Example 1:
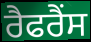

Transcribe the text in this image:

ਰੈਫਰੈਂਸ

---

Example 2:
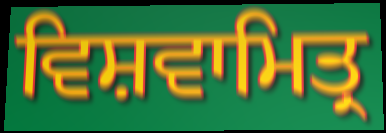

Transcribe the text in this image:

ਵਿਸ਼ਵਾਮਿਤ੍ਰ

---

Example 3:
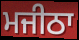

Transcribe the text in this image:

ਮਜੀਠਾ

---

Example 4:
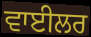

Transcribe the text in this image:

ਵਾਈਲਰ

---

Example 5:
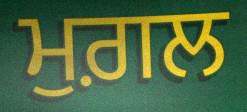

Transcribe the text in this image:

ਮੁਗ਼ਲ